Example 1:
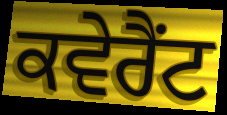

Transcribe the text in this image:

ਕਵੇਰੈਂਟ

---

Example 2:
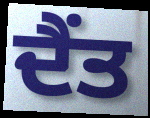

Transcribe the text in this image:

ਦੈਂਤ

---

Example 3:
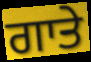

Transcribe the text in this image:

ਗਾਤੇ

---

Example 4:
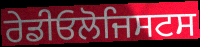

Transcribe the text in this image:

ਰੇਡੀਓਲੋਜਿਸਟਸ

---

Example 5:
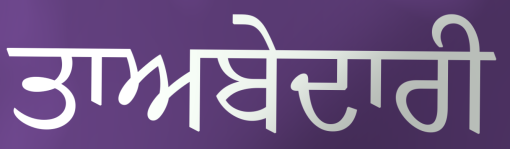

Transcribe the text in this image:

ਤਾਅਬੇਦਾਰੀ